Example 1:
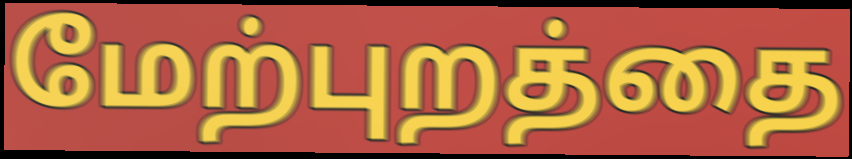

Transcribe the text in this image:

மேற்புறத்தை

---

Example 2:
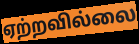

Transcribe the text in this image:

ஏற்றவில்லை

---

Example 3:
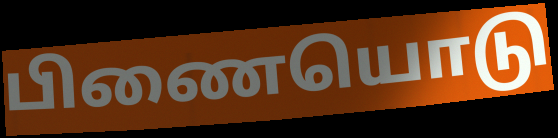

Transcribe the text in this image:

பிணையொடு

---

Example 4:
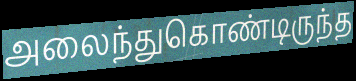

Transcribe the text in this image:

அலைந்துகொண்டிருந்த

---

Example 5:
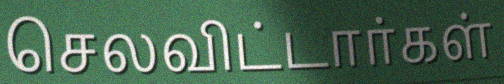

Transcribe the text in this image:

செலவிட்டார்கள்